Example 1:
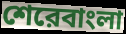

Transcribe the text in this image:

শেরেবাংলা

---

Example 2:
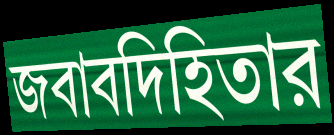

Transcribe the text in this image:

জবাবদিহিতার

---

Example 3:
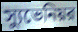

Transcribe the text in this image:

স্যুভেনিয়র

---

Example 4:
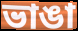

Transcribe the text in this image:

ভাঙা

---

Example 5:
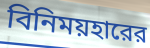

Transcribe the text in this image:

বিনিময়হারের